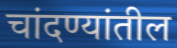
चांदण्यांतील